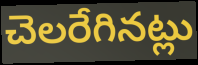
చెలరేగినట్లు